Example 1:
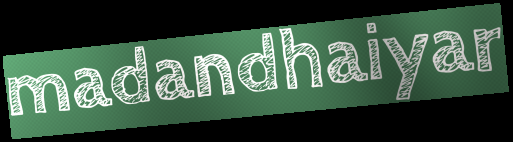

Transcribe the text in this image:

madandhaiyar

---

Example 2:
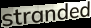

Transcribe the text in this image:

stranded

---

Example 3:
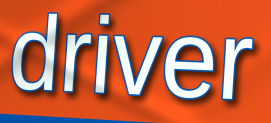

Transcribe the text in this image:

driver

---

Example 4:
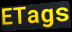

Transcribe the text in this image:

ETags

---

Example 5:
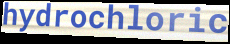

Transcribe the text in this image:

hydrochloric